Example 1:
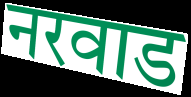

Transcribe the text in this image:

नरवाड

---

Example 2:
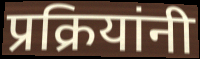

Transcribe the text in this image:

प्रक्रियांनी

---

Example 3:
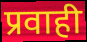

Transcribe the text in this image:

प्रवाही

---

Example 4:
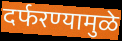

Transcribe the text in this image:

दर्फरण्यामुळे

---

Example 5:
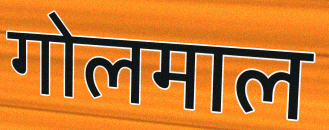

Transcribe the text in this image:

गोलमाल